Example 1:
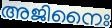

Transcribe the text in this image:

അജിനൈഃ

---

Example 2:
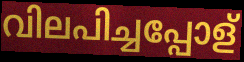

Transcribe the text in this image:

വിലപിച്ചപ്പോള്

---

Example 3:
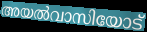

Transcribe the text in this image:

അയൽവാസിയോട്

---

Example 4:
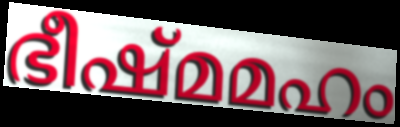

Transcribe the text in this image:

ഭീഷ്മമഹം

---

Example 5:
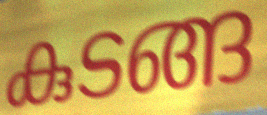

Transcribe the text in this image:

കുടങ്ങ